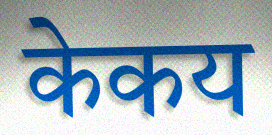
केकय